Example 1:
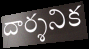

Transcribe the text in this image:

దార్శనిక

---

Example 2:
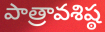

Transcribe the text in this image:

పాత్రావశిష్ఠ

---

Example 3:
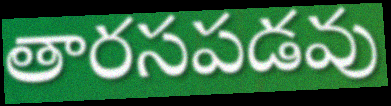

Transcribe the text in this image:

తారసపడవు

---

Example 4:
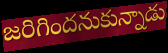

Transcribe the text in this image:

జరిగిందనుకున్నాడు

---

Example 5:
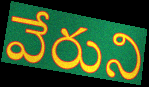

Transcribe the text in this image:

వేరుని